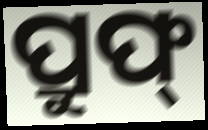
ପ୍ରୁଫ୍